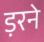
ड़रने